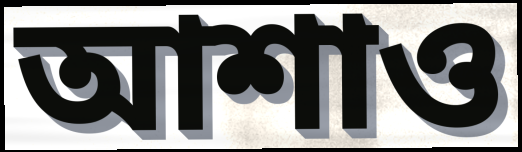
আশাও